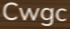
Cwgc